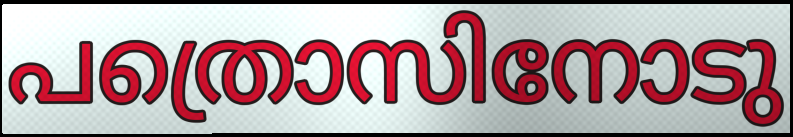
പത്രൊസിനോടു